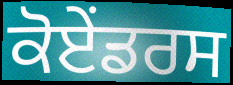
ਕੋਏਂਡਰਸ